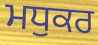
ਮਧੁਕਰ